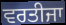
ਵਰਤੀਜਾ